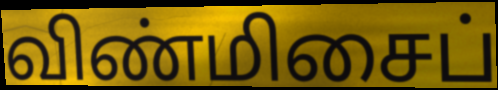
விண்மிசைப்